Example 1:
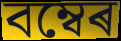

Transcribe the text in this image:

বম্বেৰ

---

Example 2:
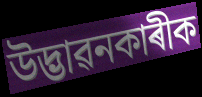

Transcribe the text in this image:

উদ্ভাৱনকাৰীক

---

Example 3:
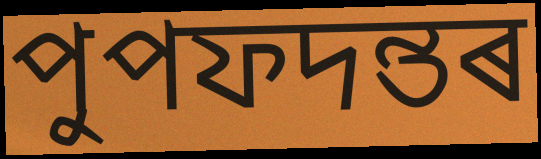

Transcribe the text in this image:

পুপফদন্তৰ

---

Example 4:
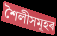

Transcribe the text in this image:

শৈলীসমূহৰ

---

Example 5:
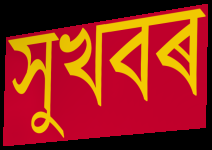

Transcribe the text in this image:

সুখবৰ